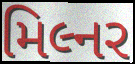
મિલ્નર